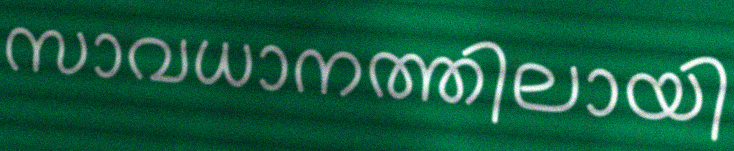
സാവധാനത്തിലായി